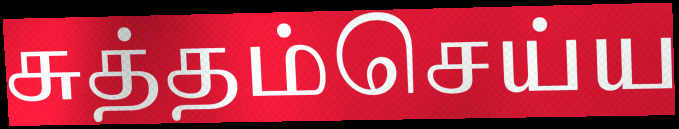
சுத்தம்செய்ய